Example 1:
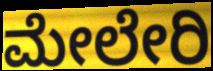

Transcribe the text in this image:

ಮೇಲೇರಿ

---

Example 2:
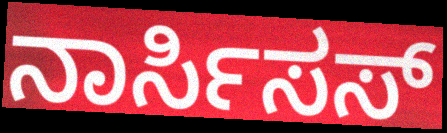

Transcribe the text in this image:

ನಾರ್ಸಿಸಸ್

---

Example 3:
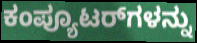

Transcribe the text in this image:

ಕಂಪ್ಯೂಟರ್‌ಗಳನ್ನು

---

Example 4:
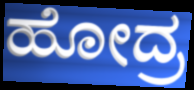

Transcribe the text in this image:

ಹೋದ್ರ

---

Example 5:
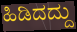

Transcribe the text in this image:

ಹಿಡಿದದ್ದು